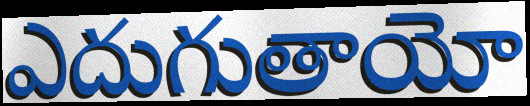
ఎదుగుతాయో